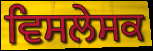
ਵਿਸਲੇਸਕ